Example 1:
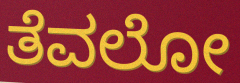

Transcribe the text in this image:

ತೆವಲೋ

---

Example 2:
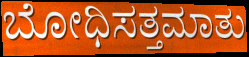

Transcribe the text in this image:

ಬೋಧಿಸತ್ತಮಾತು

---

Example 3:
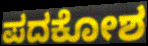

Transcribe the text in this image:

ಪದಕೋಶ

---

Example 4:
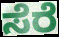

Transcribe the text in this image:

ಸೆರೆ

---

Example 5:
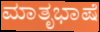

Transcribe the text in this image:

ಮಾತೃಭಾಷೆ